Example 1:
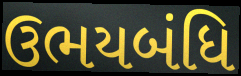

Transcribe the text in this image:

ઉભયબંધિ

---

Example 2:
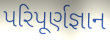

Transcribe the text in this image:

પરિપૂર્ણજ્ઞાન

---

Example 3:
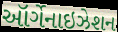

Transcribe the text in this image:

ઑર્ગેનાઇઝેશન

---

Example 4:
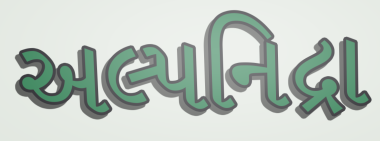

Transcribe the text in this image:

અલ્પનિદ્રા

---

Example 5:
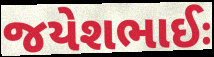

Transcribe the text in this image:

જયેશભાઈઃ